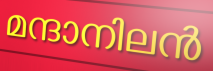
മന്ദാനിലൻ